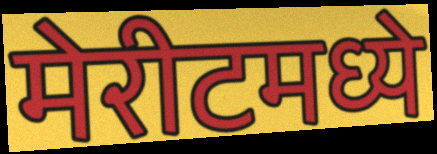
मेरीटमध्ये